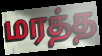
மரத்த